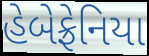
હેબેફ્રેનિયા